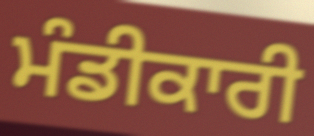
ਮੰਡੀਕਾਰੀ